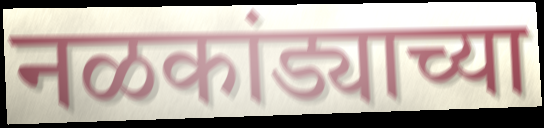
नळकांड्याच्या